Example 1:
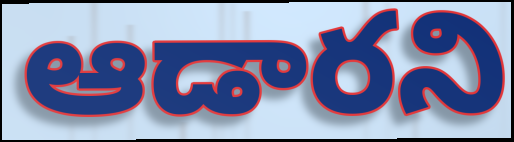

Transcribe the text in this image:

ఆడారని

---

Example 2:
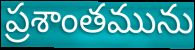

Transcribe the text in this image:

ప్రశాంతమును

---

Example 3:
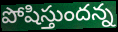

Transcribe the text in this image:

పోషిస్తుందన్న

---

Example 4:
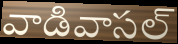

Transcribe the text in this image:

వాడివాసల్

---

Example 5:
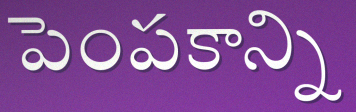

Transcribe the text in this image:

పెంపకాన్ని